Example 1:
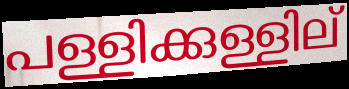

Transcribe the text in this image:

പള്ളിക്കുള്ളില്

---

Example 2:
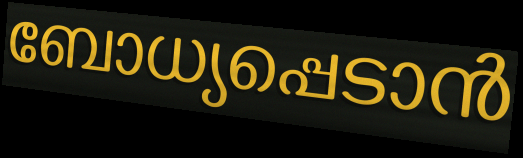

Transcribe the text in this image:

ബോധ്യപ്പെടാൻ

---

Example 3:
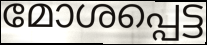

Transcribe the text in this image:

മോശപ്പെട്ട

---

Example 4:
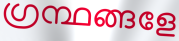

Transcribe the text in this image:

ഗ്രന്ഥങ്ങളേ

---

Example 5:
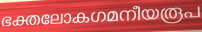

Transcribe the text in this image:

ഭക്തലോകഗമനീയരൂപ